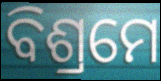
ବିଶ୍ରମେ